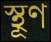
স্থূণ